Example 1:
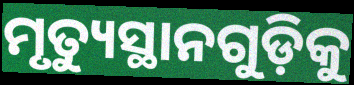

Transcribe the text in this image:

ମୃତ୍ୟୁସ୍ଥାନଗୁଡ଼ିକୁ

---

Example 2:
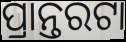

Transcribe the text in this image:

ପ୍ରାନ୍ତରଟା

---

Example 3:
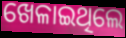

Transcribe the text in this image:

ଖେଳାଇଥିଲେ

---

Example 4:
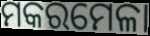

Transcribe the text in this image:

ମକରମେଳା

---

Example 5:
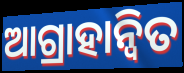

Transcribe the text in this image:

ଆଗ୍ରାହାନ୍ୱିତ